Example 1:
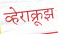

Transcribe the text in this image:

व्हेराक्रूझ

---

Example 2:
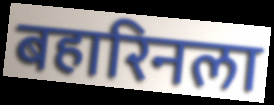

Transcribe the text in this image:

बहारिनला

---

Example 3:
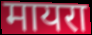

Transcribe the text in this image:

मायरा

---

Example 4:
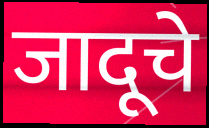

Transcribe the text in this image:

जादूचे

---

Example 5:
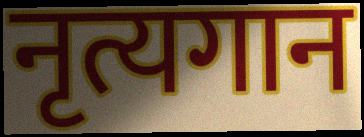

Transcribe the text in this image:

नृत्यगान